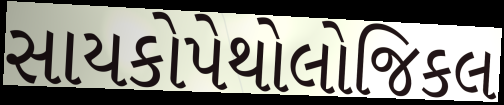
સાયકોપેથોલોજિકલ